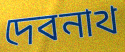
দেবনাথ